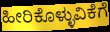
ಹೀರಿಕೊಳ್ಳುವಿಕೆಗೆ